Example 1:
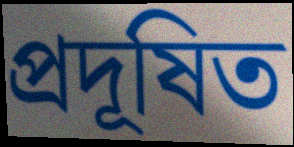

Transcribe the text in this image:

প্ৰদূষিত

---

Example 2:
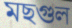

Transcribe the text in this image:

মছগুল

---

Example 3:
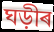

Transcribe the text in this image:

ঘড়ীৰ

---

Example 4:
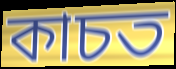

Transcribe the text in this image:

কাচত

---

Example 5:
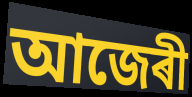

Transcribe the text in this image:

আজেৰী